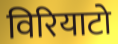
विरियाटो